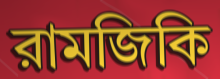
রামজিকি